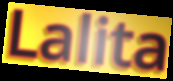
Lalita